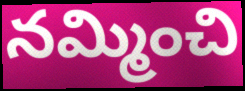
నమ్మించి